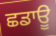
ਛਡਾਊ